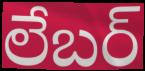
లేబర్